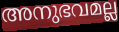
അനുഭവമല്ല